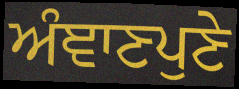
ਅੰਞਾਣਪੁਣੇ